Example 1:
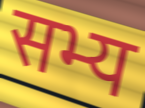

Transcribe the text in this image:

सभ्य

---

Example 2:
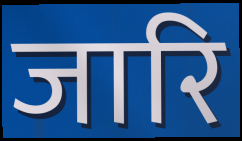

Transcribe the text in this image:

जारि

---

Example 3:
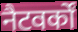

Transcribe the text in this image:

नैटवर्कों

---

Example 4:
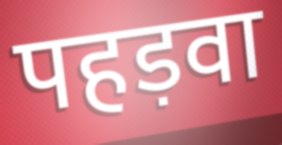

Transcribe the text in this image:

पहड़वा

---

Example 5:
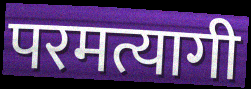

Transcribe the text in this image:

परमत्यागी